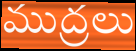
ముద్రలు